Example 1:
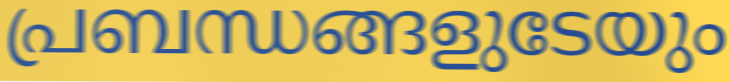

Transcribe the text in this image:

പ്രബന്ധങ്ങളുടേയും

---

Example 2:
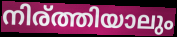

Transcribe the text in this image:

നിര്ത്തിയാലും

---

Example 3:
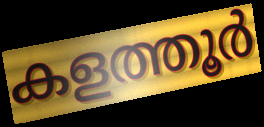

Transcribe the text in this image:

കളത്തൂർ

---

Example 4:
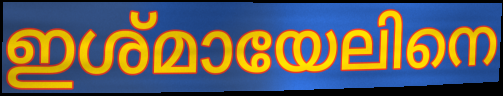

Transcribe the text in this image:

ഇശ്മായേലിനെ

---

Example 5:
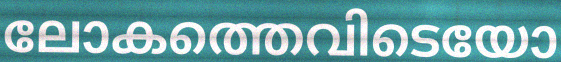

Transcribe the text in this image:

ലോകത്തെവിടെയോ